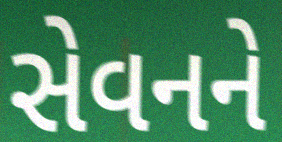
સેવનને